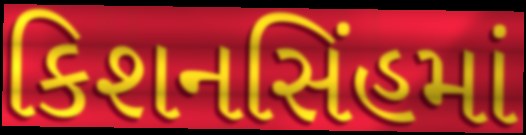
કિશનસિંહમાં